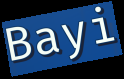
Bayi